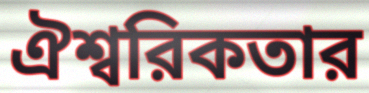
ঐশ্বরিকতার